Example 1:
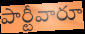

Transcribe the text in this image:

పార్టీవారూ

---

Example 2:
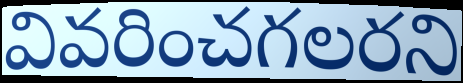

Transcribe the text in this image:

వివరించగలరని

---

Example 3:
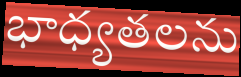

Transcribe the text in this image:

భాధ్యతలను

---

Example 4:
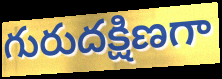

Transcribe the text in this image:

గురుదక్షిణగా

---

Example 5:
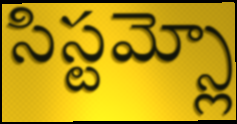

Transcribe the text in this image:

సిస్టమ్స్లో